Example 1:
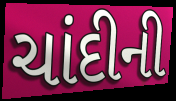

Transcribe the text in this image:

ચાંદીની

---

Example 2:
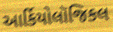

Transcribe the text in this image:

આર્કિયોલૉજિકલ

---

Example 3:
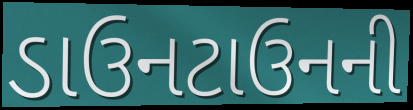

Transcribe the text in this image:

ડાઉનટાઉનની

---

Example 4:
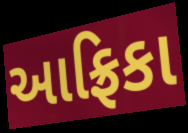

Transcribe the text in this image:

આફ્રિકા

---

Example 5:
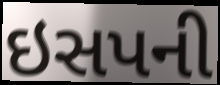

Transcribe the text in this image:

ઇસપની